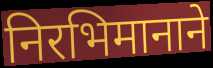
निरभिमानाने